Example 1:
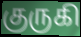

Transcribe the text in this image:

குருகி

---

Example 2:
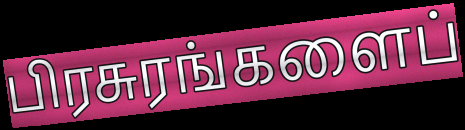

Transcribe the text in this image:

பிரசுரங்களைப்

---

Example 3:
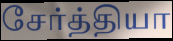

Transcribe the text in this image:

சேர்த்தியா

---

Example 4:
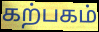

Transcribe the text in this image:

கற்பகம்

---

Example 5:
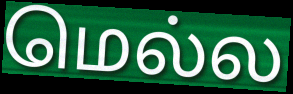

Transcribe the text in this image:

மெல்ல